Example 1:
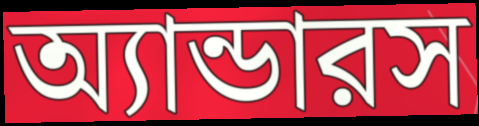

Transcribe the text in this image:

অ্যান্ডারস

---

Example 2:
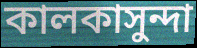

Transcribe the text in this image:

কালকাসুন্দা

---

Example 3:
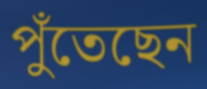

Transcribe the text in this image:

পুঁতেছেন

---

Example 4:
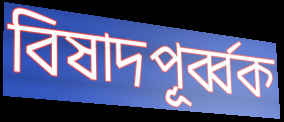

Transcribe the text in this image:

বিষাদপূর্ব্বক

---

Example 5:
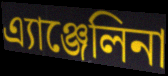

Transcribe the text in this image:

এ্যাঞ্জেলিনা